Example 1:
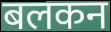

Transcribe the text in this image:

बलकन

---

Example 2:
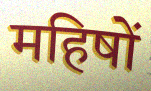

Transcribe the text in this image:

महिषों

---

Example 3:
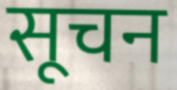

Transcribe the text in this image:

सूचन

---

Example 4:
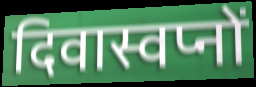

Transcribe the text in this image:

दिवास्वप्नों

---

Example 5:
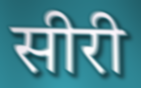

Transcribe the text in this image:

सीरी